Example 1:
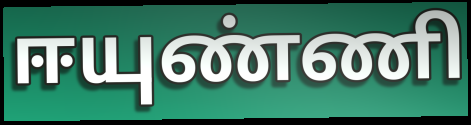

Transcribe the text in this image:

ஈயுண்ணி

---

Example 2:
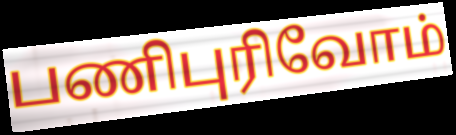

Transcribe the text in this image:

பணிபுரிவோம்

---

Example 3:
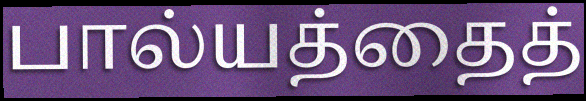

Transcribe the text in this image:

பால்யத்தைத்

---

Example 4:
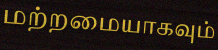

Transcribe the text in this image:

மற்றமையாகவும்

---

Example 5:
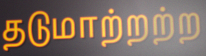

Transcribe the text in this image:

தடுமாற்றற்ற